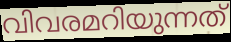
വിവരമറിയുന്നത്